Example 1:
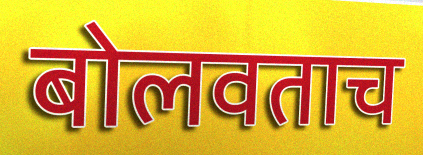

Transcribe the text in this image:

बोलवताच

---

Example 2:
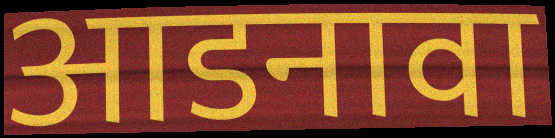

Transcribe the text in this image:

आडनावा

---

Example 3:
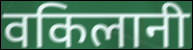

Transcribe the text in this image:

वकिलानी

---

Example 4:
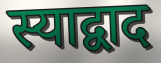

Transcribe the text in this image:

स्याद्वाद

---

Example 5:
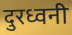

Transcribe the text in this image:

दुरध्वनी